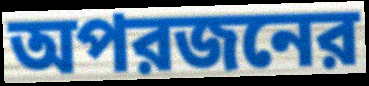
অপরজনের